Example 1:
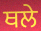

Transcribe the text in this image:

ਥਲੇ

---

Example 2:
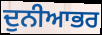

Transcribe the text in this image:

ਦੁਨੀਆਭਰ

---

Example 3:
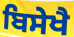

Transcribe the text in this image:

ਬਿਸੇਖੈ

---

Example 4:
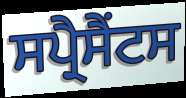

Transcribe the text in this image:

ਸਪ੍ਰੈਸੈਂਟਸ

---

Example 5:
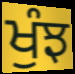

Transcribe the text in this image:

ਖੁੰਝ